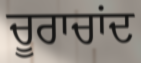
ਚੂਰਾਚਾਂਦ